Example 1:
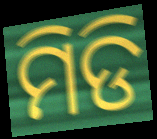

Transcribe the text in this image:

ମିଡି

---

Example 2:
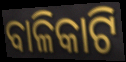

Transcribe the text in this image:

ବାଳିକାଟି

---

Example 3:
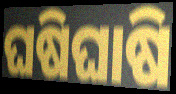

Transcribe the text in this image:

ଘଷିଘାଷି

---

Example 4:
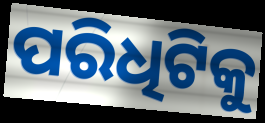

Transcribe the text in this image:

ପରିଧିଟିକୁ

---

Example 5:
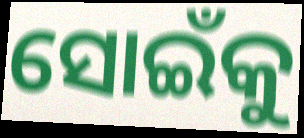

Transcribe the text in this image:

ସୋଇଁକୁ